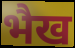
भैख